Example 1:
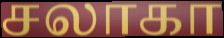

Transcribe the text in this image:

சலாகா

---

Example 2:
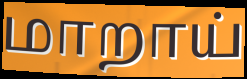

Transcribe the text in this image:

மாறாய்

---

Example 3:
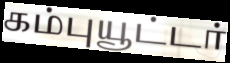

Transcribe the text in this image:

கம்புயூட்டர்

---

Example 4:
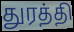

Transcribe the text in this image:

துரத்தி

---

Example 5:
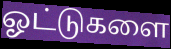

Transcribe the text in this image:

ஓட்டுகளை